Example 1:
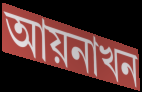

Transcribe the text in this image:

আয়নাখন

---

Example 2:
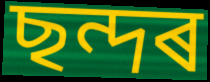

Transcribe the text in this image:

ছন্দৰ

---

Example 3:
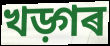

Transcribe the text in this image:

খড়্গৰ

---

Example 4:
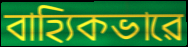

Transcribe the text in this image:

বাহ্যিকভাৱে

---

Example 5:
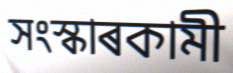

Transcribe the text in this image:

সংস্কাৰকামী